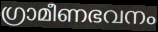
ഗ്രാമീണഭവനം